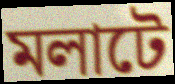
মলাটে